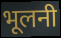
भूलनी